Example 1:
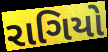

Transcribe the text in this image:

રાગિયો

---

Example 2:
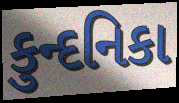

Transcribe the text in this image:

કુન્દનિકા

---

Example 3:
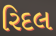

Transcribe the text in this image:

રિદલ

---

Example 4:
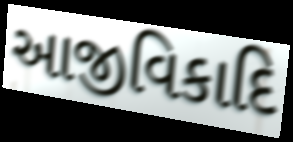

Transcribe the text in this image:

આજીવિકાદિ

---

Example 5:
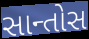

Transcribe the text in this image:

સાન્તોસ